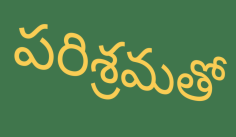
పరిశ్రమతో